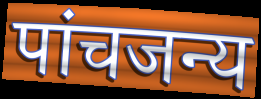
पांचजन्य